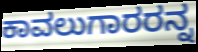
ಕಾವಲುಗಾರರನ್ನ